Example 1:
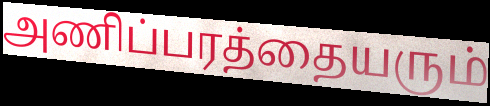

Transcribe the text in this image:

அணிப்பரத்தையரும்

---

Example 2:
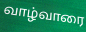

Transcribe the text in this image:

வாழ்வாரை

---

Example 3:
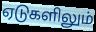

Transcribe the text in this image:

ஏடுகளிலும்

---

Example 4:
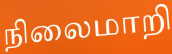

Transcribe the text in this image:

நிலைமாறி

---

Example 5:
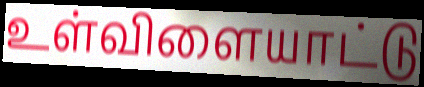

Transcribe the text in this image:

உள்விளையாட்டு